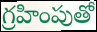
గ్రహింపుతో